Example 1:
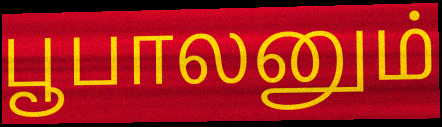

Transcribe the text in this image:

பூபாலனும்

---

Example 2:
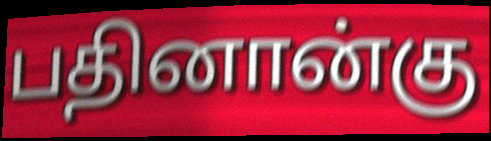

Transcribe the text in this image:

பதினான்கு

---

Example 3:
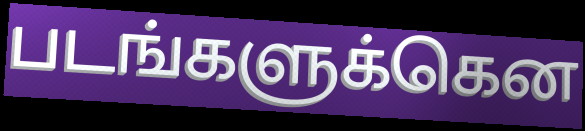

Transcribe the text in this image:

படங்களுக்கென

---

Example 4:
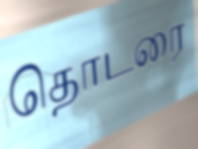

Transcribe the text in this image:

தொடரை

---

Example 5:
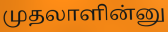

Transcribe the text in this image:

முதலாளின்னு